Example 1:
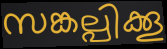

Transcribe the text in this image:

സങ്കല്പിക്കൂ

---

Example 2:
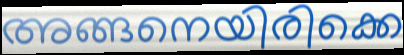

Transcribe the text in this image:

അങ്ങനെയിരിക്കെ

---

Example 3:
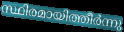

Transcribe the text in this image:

സ്ഥിരമായിത്തീർന്നു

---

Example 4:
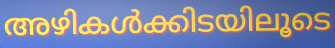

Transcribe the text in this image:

അഴികൾക്കിടയിലൂടെ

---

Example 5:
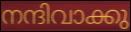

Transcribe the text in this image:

നന്ദിവാക്കു